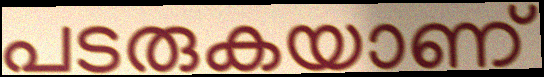
പടരുകയാണ്